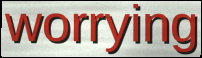
worrying